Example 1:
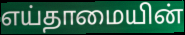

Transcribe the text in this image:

எய்தாமையின்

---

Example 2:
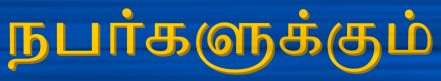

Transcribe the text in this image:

நபர்களுக்கும்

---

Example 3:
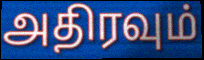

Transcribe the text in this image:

அதிரவும்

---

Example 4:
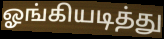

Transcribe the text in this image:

ஓங்கியடித்து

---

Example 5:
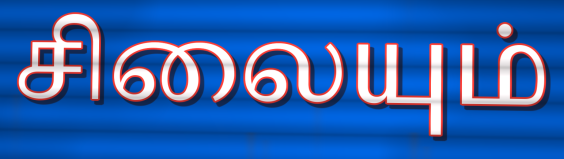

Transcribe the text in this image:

சிலையும்